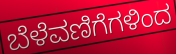
ಬೆಳೆವಣಿಗೆಗಳಿಂದ